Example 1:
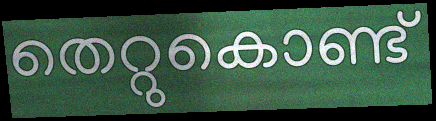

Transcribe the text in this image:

തെറ്റുകൊണ്ട്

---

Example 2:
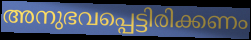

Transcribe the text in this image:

അനുഭവപ്പെട്ടിരിക്കണം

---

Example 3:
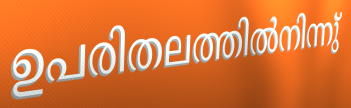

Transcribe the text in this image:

ഉപരിതലത്തിൽനിന്നു്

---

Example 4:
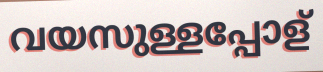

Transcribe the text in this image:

വയസുള്ളപ്പോള്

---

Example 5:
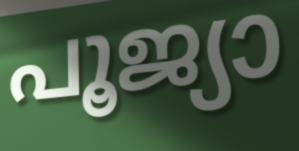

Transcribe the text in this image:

പൂജ്യാ